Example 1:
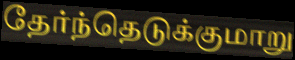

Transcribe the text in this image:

தேர்ந்தெடுக்குமாறு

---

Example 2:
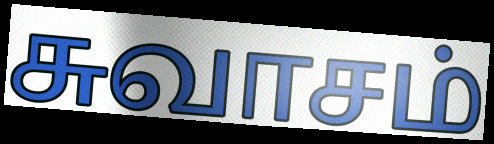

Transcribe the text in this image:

சுவாசம்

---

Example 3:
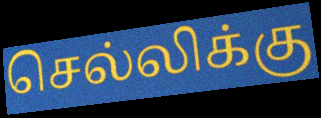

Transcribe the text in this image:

செல்லிக்கு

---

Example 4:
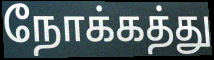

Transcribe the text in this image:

நோக்கத்து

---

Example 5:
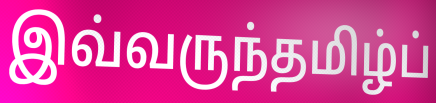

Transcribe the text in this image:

இவ்வருந்தமிழ்ப்